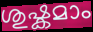
ശുഷ്കമാം